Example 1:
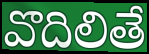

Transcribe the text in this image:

వొదిలితే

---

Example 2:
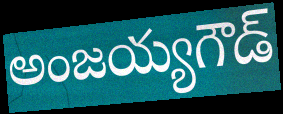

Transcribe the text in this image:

అంజయ్యగౌడ్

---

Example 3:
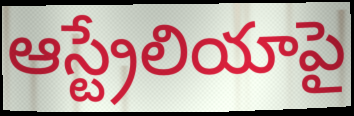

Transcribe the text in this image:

ఆస్ట్రేలియాపై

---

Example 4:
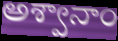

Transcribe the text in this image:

అశ్వానాం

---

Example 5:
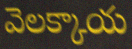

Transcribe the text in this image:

వెలక్కాయ